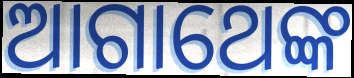
ଆଗାଥେଙ୍କ